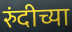
रुंदीच्या